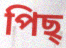
পিছ্